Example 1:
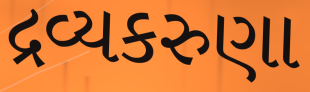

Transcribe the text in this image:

દ્રવ્યકરુણા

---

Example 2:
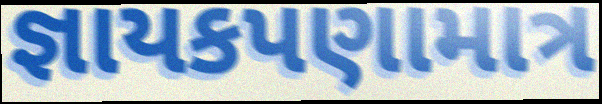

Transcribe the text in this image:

જ્ઞાયકપણામાત્ર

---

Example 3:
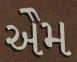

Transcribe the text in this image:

એેમ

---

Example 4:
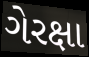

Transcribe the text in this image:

ગેરક્ષા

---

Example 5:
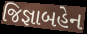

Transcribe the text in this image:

જિજ્ઞાબહેન